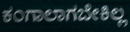
ಕಂಗಾಲಾಗಬೇಕಿಲ್ಲ